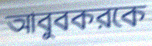
আবুবকরকে